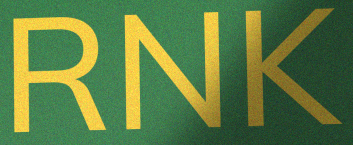
RNK